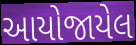
આયોજાયેલ